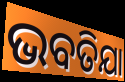
ଭବତିଯା